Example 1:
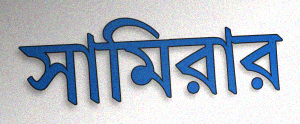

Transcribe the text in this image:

সামিরার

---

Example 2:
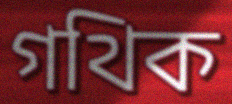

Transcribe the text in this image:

গথিক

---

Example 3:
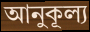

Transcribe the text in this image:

আনুকূল্য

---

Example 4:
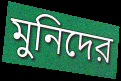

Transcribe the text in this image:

মুনিদের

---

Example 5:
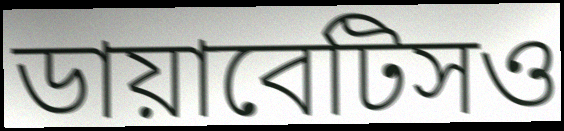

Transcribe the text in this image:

ডায়াবেটিসও